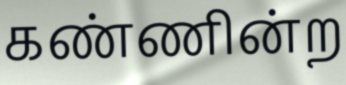
கண்ணின்ற